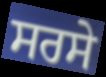
ਸਰਸੇ